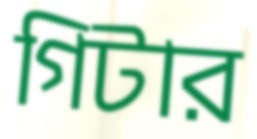
গিটার